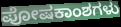
ಪೋಷಕಾಂಶಗಳು